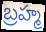
బ్రహ్మ